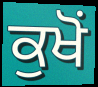
ਕੁਖੋਂ